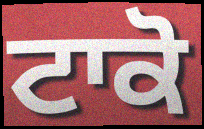
ਟਾਕੋ